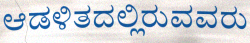
ಆಡಳಿತದಲ್ಲಿರುವವರು